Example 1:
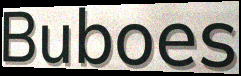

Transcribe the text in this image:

Buboes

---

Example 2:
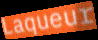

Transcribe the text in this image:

Laqueur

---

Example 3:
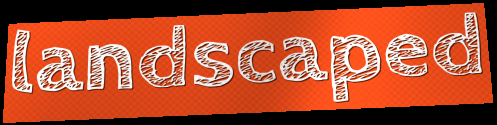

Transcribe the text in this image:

landscaped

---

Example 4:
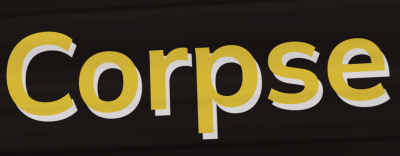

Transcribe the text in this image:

Corpse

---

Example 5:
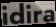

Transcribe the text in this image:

idira